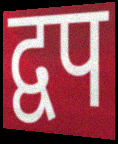
द्वप